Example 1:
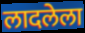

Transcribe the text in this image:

लादलेला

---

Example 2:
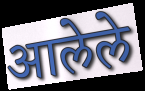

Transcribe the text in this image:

आलेले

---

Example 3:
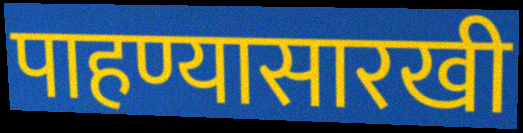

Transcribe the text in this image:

पाहण्यासारखी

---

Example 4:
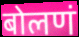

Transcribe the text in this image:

बोलणं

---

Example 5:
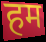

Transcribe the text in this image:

हम